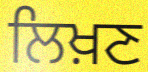
ਲਿਖ਼ਣ